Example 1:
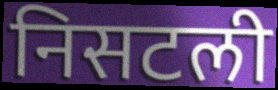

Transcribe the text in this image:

निसटली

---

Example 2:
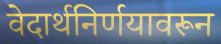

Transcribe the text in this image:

वेदार्थनिर्णयावरून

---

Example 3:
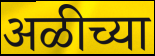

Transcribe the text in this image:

अळीच्या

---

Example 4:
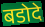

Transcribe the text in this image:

बडोदे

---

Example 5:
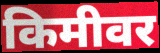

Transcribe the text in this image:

किमीवर